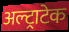
अल्‍ट्राटेक